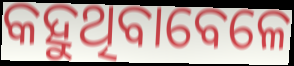
କହୁଥିବାବେଳେ